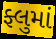
ફ્લુમાં